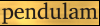
pendulam